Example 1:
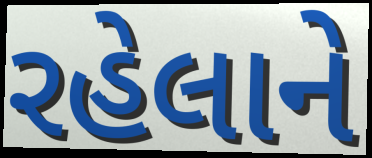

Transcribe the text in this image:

રહેલાને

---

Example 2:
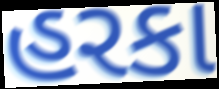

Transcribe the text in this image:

હરકા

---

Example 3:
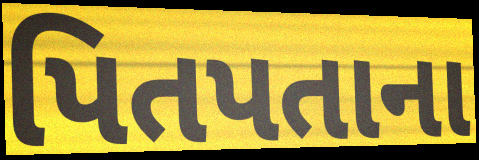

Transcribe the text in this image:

પિતપતાના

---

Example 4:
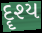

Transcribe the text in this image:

દૄશ્ય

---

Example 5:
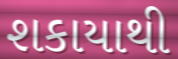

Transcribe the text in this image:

શકાયાથી